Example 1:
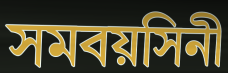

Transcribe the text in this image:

সমবয়সিনী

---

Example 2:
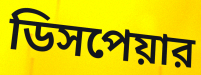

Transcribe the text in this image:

ডিসপেয়ার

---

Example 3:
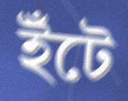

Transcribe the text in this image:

ইঁটে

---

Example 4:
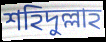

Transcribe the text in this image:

শহিদুল্লাহ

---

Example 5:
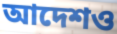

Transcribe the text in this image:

আদেশও